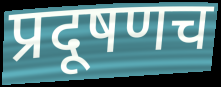
प्रदूषणच